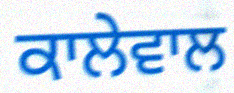
ਕਾਲੇਵਾਲ